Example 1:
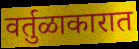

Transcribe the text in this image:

वर्तुळाकारात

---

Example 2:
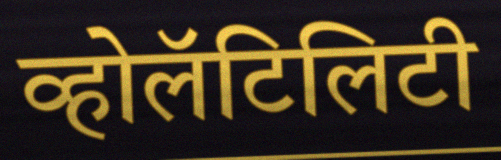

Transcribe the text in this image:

व्होलॅटिलिटी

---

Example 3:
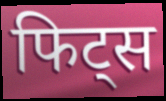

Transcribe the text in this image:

फिट्स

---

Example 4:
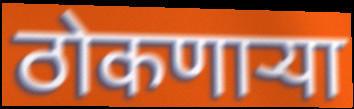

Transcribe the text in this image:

ठोकणाऱ्या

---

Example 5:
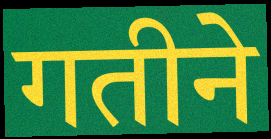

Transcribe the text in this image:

गतीने